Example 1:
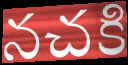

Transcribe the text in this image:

నచకి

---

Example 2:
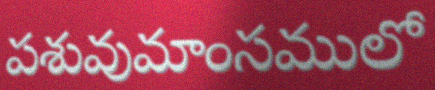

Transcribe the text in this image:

పశువుమాంసములో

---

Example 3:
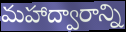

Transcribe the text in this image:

మహాద్వారాన్ని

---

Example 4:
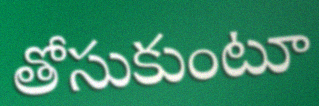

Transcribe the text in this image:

తోసుకుంటూ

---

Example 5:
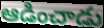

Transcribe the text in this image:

ఆడించాడు